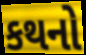
કથનો